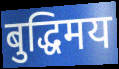
बुद्धिमय